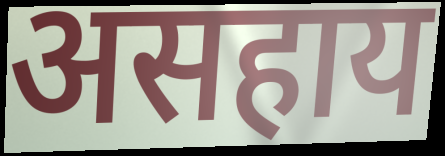
असहाय